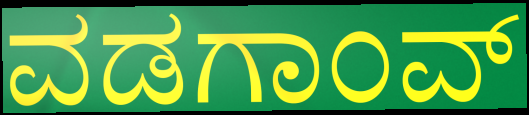
ವಡಗಾಂವ್